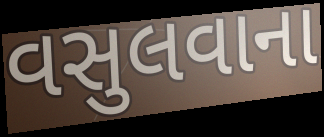
વસુલવાના